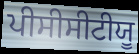
ਪੀਸੀਸੀਟੀਯੂ